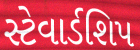
સ્ટેવાર્ડશિપ